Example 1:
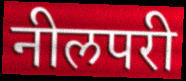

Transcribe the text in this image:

नीलपरी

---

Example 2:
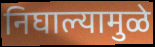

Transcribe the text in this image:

निघाल्यामुळे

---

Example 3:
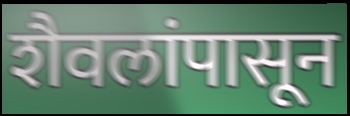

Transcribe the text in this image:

शैवलांपासून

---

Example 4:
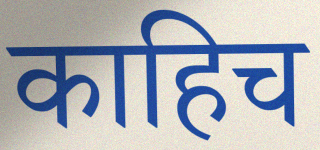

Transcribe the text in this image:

काहिच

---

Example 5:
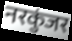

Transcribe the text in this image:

नरकुंजर